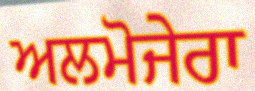
ਅਲਮੋਜੇਰਾ